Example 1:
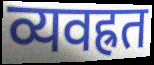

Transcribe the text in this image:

व्यवह्रत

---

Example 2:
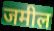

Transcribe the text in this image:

जमील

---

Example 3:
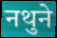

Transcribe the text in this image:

नथुने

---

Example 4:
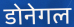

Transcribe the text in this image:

डोनेगल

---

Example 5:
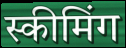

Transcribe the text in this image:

स्कीमिंग